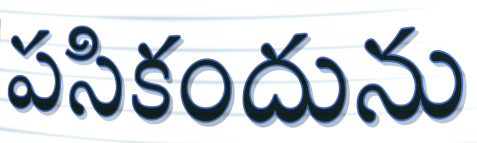
పసికందును